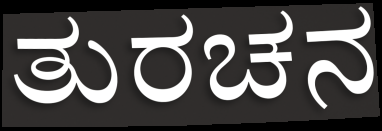
ತುರಚನ